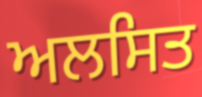
ਅਲਸਿਤ